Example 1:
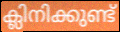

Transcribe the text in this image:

ക്ലിനിക്കുണ്ട്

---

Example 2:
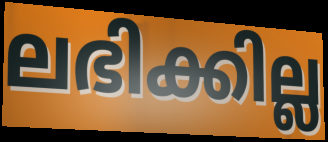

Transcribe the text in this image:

ലഭിക്കില്ല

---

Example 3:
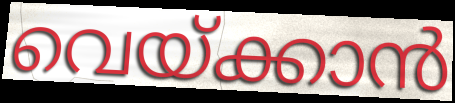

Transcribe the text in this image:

വെയ്ക്കാൻ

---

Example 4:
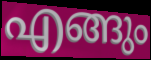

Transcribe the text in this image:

എങ്ങും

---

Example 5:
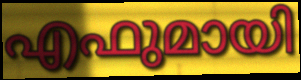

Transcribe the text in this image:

എഫുമായി